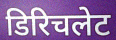
डिरिचलेट